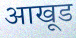
आखूड